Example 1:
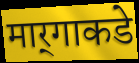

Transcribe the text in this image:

मार्गाकडे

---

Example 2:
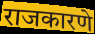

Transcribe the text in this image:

राजकारणे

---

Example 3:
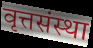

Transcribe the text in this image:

वृत्तसंस्था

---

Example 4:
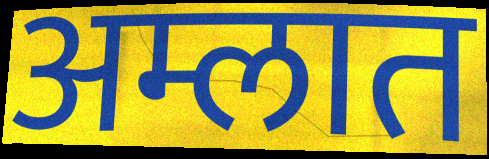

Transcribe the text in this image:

अम्लात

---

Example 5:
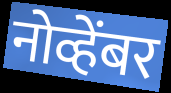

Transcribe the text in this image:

नोव्हेंबर